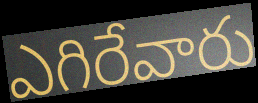
ఎగిరేవారు